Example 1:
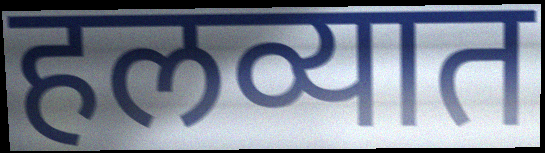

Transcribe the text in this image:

हलव्यात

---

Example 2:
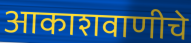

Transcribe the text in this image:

आकाशवाणीचे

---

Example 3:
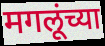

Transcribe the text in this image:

मगलूंच्या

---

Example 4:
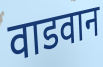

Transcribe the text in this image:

वाडवान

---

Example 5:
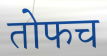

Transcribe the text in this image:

तोफच